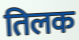
तिलक